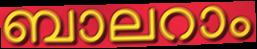
ബാലറാം